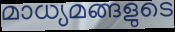
മാധ്യമങ്ങളുടെ